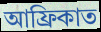
আফ্ৰিকাত